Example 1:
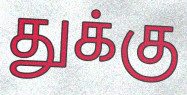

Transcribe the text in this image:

துக்கு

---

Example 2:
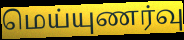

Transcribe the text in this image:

மெய்யுணர்வு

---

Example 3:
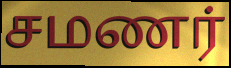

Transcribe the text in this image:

சமணர்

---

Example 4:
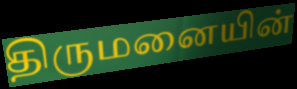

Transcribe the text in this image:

திருமனையின்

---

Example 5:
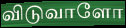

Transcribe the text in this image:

விடுவாளோ